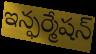
ఇన్ఫర్మేషన్